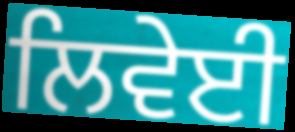
ਲਿਵੇਈ